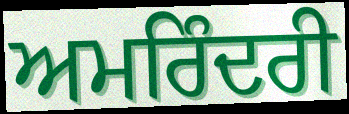
ਅਮਰਿੰਦਰੀ